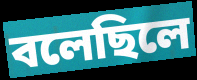
বলেছিলে